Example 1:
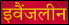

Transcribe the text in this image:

इवैंजलीन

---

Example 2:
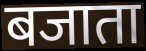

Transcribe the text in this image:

बजाता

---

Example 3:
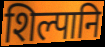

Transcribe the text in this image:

शिल्पानि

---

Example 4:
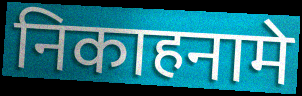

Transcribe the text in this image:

निकाहनामे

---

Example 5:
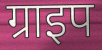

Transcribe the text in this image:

ग्राइप